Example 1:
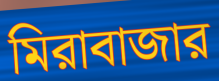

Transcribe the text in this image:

মিরাবাজার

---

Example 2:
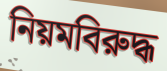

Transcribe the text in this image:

নিয়মবিরুদ্ধ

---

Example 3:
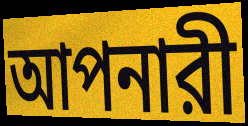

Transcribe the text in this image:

আপনারী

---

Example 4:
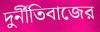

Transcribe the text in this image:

দুর্নীতিবাজের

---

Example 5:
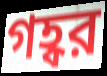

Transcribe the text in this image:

গহ্বর